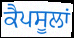
ਕੈਪਸੂਲਾਂ